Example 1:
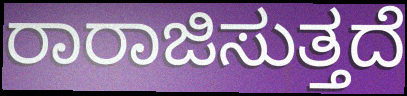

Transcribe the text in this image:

ರಾರಾಜಿಸುತ್ತದೆ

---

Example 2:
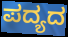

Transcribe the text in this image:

ಪದ್ಯದ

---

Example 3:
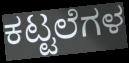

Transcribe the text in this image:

ಕಟ್ಟಲೆಗಳ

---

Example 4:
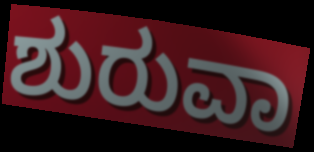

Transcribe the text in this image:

ಶುರುವಾ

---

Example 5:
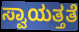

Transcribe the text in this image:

ಸ್ವಾಯತ್ತತೆ